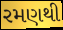
રમણથી